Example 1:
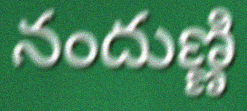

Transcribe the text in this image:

నందుణ్ణి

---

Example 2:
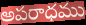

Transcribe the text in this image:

అపరాధము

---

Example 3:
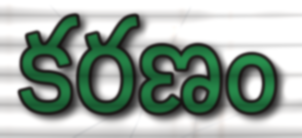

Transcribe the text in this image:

కరణం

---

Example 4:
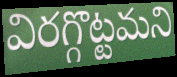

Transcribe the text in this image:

విరగ్గొట్టమని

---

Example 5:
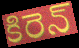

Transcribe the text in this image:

కిరెన్